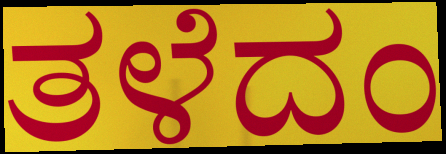
ತಳೆದಂ